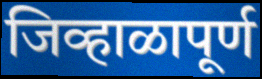
जिव्हाळापूर्ण